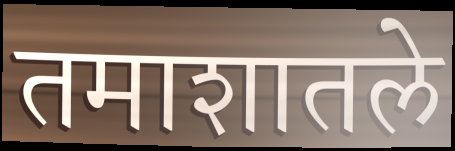
तमाशातले